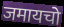
जमायचो